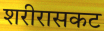
शरीरासकट